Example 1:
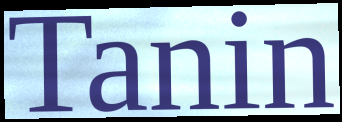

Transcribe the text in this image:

Tanin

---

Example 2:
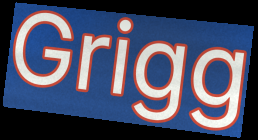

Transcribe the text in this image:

Grigg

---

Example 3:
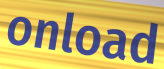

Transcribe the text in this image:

onload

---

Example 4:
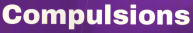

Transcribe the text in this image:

Compulsions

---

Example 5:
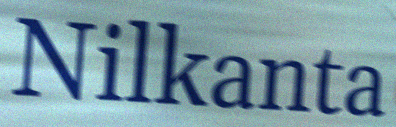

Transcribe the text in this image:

Nilkanta